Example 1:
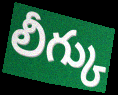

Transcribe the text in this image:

లీగ్కు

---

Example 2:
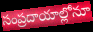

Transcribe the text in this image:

సంప్రదాయాల్లోనూ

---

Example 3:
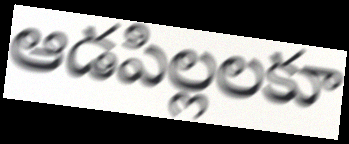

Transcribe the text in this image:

ఆడపిల్లలకూ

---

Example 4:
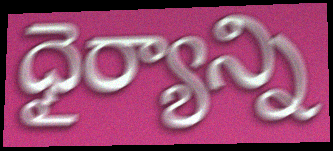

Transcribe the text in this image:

ధైర్యాన్ని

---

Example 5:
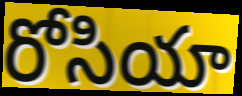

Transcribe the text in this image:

రోసియా